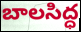
బాలసిద్ధ